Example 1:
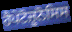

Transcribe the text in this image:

ਹੈਪੇਟੋਜ਼ੂਨੋਸਿਸ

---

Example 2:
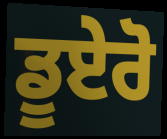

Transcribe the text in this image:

ਡੂਏਰੋ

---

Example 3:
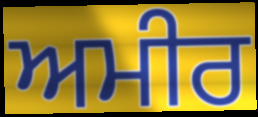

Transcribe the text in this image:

ਅਮੀਰ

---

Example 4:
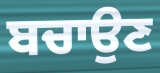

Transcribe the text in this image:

ਬਚਾਉਣ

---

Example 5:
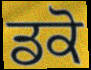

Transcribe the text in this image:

ਡਕੋ